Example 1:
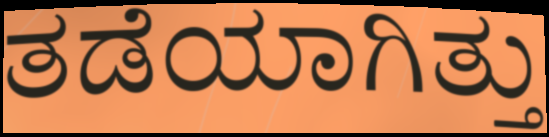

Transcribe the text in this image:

ತಡೆಯಾಗಿತ್ತು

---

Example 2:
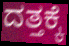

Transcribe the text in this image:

ದತ್ತಕ್ಕೆ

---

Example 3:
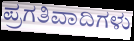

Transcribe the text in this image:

ಪ್ರಗತಿವಾದಿಗಳು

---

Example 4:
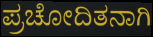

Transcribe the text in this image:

ಪ್ರಚೋದಿತನಾಗಿ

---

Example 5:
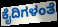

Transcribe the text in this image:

ಕೈದಿಗಳಂತೆ